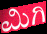
ಮಿಗಿ